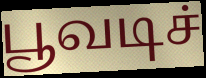
பூவடிச்